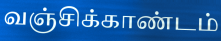
வஞ்சிக்காண்டம்